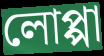
লোপ্পা